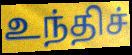
உந்திச்